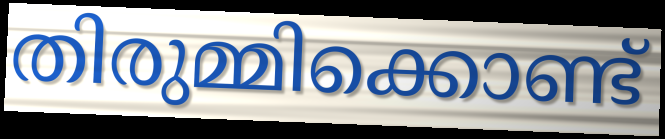
തിരുമ്മിക്കൊണ്ട്